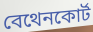
বেথেনকোর্ট